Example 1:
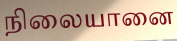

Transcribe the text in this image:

நிலையானை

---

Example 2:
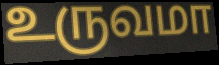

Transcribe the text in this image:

உருவமா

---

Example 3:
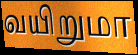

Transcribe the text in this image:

வயிறுமா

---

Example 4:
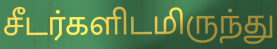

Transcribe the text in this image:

சீடர்களிடமிருந்து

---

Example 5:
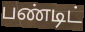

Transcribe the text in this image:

பண்டிட்